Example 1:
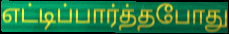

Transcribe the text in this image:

எட்டிப்பார்த்தபோது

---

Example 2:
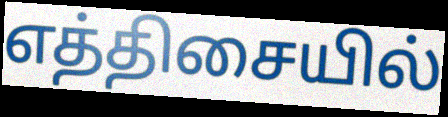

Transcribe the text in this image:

எத்திசையில்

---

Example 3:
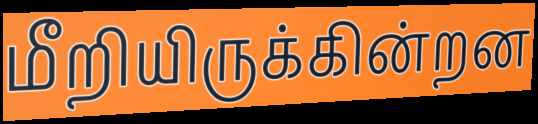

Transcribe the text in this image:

மீறியிருக்கின்றன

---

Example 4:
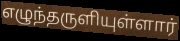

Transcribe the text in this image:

எழுந்தருளியுள்ளார்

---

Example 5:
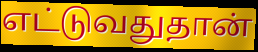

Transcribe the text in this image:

எட்டுவதுதான்